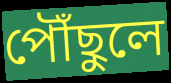
পৌঁছুলে